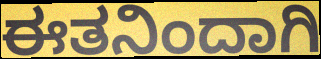
ಈತನಿಂದಾಗಿ